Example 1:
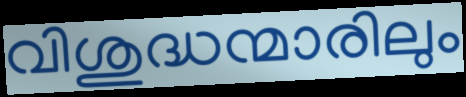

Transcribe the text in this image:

വിശുദ്ധന്മാരിലും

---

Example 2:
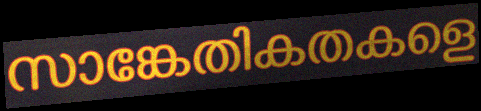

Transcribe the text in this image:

സാങ്കേതികതകളെ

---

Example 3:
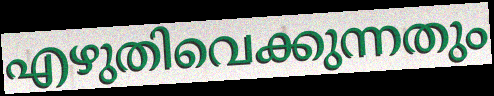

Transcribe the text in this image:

എഴുതിവെക്കുന്നതും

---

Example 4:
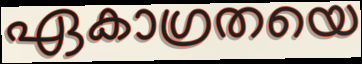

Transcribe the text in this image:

ഏകാഗ്രതയെ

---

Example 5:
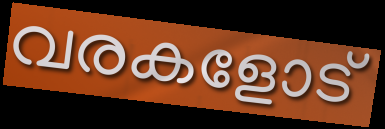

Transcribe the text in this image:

വരകളോട്